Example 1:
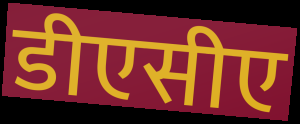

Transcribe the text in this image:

डीएसीए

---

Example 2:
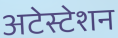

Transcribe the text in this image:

अटेस्टेशन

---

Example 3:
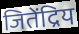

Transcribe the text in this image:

जितेंद्रिय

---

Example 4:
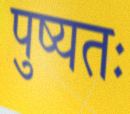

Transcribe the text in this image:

पुष्यतः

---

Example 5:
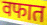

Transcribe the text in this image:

वफात